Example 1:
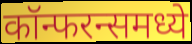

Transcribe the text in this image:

कॉन्फरन्समध्ये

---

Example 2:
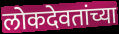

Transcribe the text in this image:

लोकदेवतांच्या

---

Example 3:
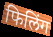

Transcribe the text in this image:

फिलिंग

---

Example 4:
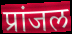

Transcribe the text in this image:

प्रांजल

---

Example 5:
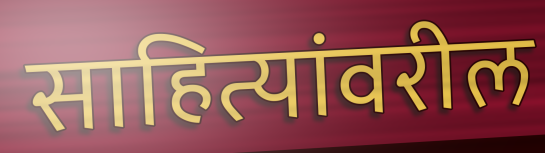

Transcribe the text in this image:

साहित्यांवरील